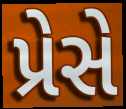
પ્રેસે